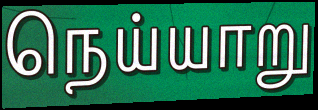
நெய்யாறு